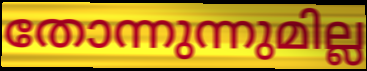
തോന്നുന്നുമില്ല